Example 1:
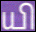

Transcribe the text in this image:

யி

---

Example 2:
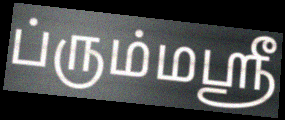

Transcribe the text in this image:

ப்ரும்மஸ்ரீ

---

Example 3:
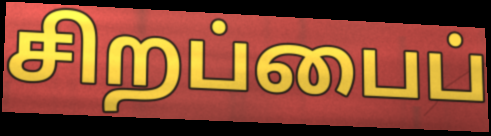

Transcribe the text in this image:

சிறப்பைப்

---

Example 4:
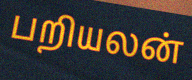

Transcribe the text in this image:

பறியலன்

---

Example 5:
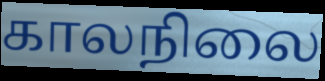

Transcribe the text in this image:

காலநிலை